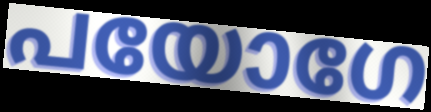
പയോഗേ